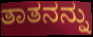
ತಾತನನ್ನು